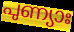
പുണ്യാഃ